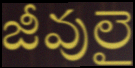
జీవులై